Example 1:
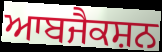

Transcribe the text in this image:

ਆਬਜੈਕਸ਼ਨ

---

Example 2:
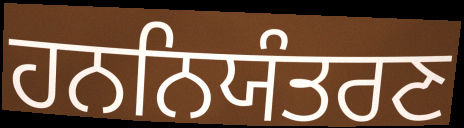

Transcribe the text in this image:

ਹਨਨਿਯੰਤਰਣ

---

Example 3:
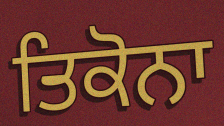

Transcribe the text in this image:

ਤਿਕੋਨਾ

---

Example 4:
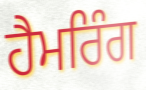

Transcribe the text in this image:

ਹੈਮਰਿੰਗ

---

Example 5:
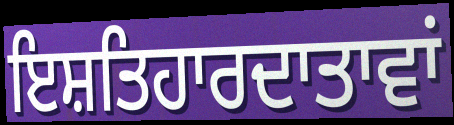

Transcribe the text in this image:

ਇਸ਼ਤਿਹਾਰਦਾਤਾਵਾਂ